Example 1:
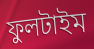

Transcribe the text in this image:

ফুলটাইম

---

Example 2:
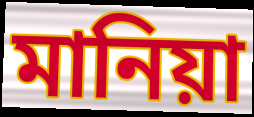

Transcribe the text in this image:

মানিয়া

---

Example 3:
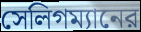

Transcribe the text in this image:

সেলিগম্যানের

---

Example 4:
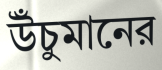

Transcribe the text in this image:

উঁচুমানের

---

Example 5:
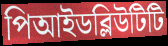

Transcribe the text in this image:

পিআইডব্লিউটিটি